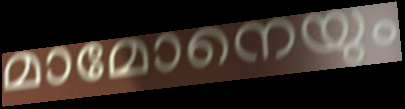
മാമോനെയും